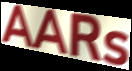
AARs